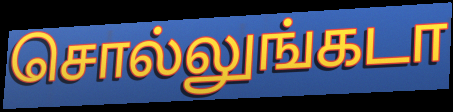
சொல்லுங்கடா